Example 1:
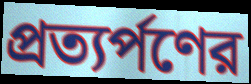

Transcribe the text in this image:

প্রত্যর্পণের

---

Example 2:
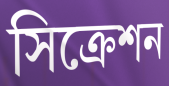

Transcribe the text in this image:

সিক্রেশন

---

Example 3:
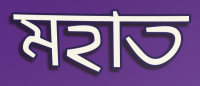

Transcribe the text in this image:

মহাত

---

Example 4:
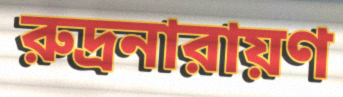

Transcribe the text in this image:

রুদ্রনারায়ণ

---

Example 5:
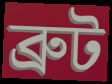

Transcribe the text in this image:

ব্রুট